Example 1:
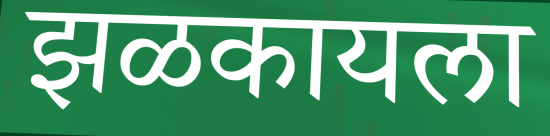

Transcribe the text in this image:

झळकायला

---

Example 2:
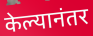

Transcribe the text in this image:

केल्यानंतर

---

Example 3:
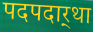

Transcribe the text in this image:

पदपदार्था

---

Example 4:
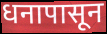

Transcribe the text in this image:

धनापासून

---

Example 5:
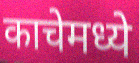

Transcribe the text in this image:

काचेमध्ये